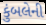
કુંબલેની